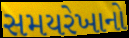
સમયરેખાનો